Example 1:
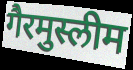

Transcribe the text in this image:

गैरमुस्लीम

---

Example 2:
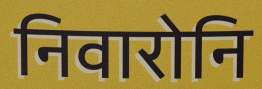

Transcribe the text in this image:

निवारोनि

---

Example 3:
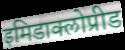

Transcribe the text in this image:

इमिडाक्लोप्रीड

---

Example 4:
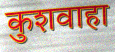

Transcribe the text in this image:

कुशवाहा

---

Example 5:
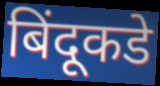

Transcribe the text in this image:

बिंदूकडे